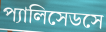
প্যালিসেডসে